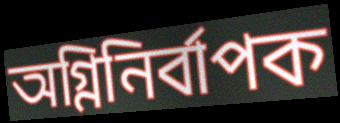
অগ্নিনির্বাপক